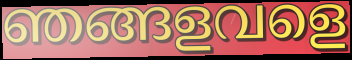
ഞങ്ങളവളെ